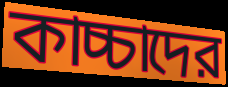
কাচ্চাদের